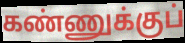
கண்ணுக்குப்